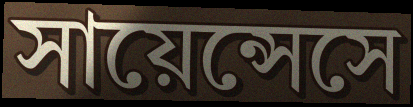
সায়েন্সেসে